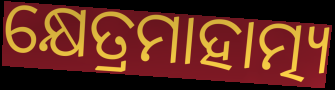
କ୍ଷେତ୍ରମାହାତ୍ମ୍ୟ